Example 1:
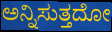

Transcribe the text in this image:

ಅನ್ನಿಸುತ್ತದೋ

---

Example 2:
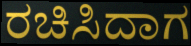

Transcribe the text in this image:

ರಚಿಸಿದಾಗ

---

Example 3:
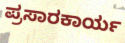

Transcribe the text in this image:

ಪ್ರಸಾರಕಾರ್ಯ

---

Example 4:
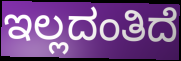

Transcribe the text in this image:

ಇಲ್ಲದಂತಿದೆ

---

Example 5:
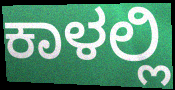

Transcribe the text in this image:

ಕಾಳಲ್ಲಿ